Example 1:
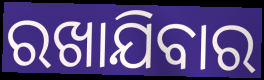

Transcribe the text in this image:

ରଖାଯିବାର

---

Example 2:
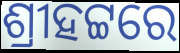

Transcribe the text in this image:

ଶ୍ରୀହଟ୍ଟରେ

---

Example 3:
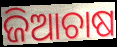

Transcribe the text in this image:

ଜିଆଚାଷ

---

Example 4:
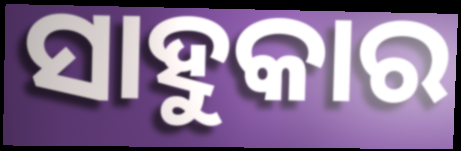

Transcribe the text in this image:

ସାହୁକାର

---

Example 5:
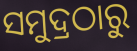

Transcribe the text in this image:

ସମୁଦ୍ରଠାରୁ